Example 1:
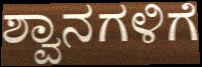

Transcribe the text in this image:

ಶ್ವಾನಗಳಿಗೆ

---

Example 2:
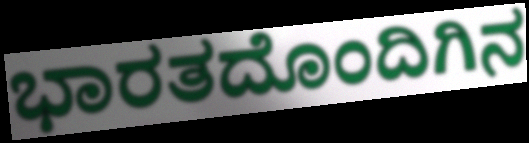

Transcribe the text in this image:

ಭಾರತದೊಂದಿಗಿನ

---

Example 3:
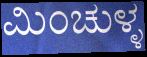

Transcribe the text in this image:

ಮಿಂಚುಳ್ಳ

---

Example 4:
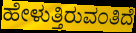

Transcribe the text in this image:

ಹೇಳುತ್ತಿರುವಂತಿದೆ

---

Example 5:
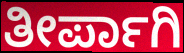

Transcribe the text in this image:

ತೀರ್ಪಾಗಿ